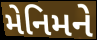
મેનિમને